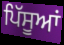
ਪਿੱਸੂਆਂ